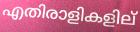
എതിരാളികളില്